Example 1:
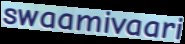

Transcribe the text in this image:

swaamivaari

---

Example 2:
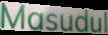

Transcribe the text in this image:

Masudul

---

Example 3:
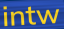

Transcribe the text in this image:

intw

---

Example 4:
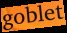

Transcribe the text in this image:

goblet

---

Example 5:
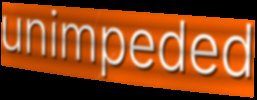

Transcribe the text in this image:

unimpeded